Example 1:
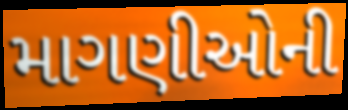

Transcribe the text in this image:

માગણીઓની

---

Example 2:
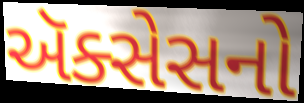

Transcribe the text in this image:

ઍક્સેસનો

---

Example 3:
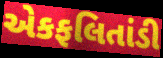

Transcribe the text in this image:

એકફલિતાંડી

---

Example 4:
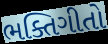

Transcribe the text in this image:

ભક્તિગીતો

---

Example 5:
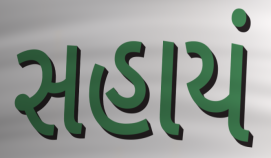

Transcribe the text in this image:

સહાયં